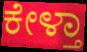
ಕೇಳ್ತಾ